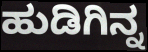
ಹುಡಿಗಿನ್ನ